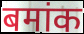
बमांक